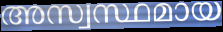
അസ്വസ്ഥമായ